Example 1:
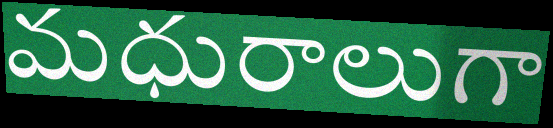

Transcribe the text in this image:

మధురాలుగా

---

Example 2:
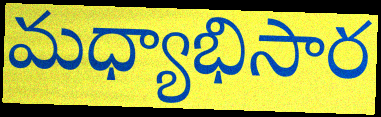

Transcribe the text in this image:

మధ్యాభిసార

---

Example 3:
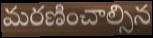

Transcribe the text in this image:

మరణించాల్సిన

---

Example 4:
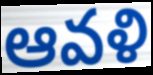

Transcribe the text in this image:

ఆవళి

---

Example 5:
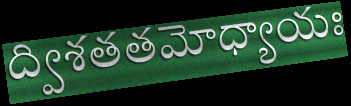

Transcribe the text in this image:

ద్విశతతమోధ్యాయః